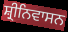
ਸ਼੍ਰੀਨਿਵਾਸਨ